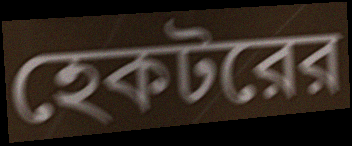
হেকটরের